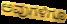
ಅವುಗಳಿಗೂ